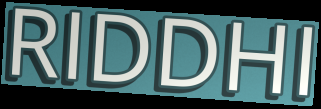
RIDDHI